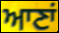
ਆਣਾਂ